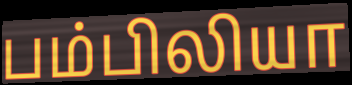
பம்பிலியா